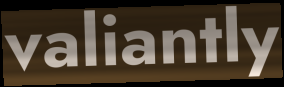
valiantly